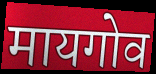
मायगोव